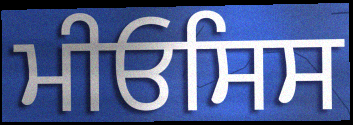
ਮੀਓਸਿਸ